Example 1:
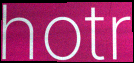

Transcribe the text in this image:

hotr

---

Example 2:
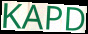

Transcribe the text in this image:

KAPD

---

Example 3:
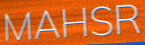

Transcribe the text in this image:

MAHSR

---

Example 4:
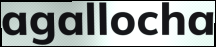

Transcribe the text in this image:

agallocha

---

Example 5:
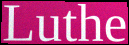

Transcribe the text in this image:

Luthe